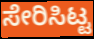
ಸೇರಿಸಿಟ್ಟ